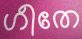
ഗീതേ